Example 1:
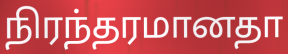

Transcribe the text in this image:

நிரந்தரமானதா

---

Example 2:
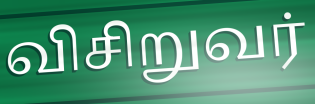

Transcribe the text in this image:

விசிறுவர்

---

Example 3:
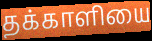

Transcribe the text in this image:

தக்காளியை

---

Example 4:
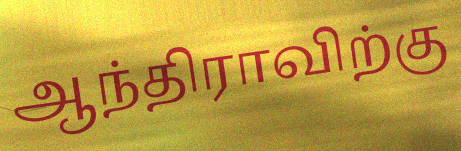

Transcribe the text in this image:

ஆந்திராவிற்கு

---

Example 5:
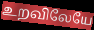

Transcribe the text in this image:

உறவிலேயே